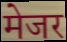
मेजर